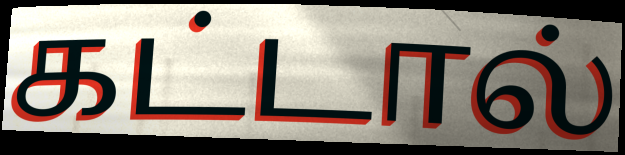
கட்டால்